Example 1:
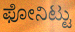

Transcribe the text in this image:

ಫೋನಿಟ್ಟು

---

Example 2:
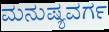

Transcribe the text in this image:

ಮನುಷ್ಯವರ್ಗ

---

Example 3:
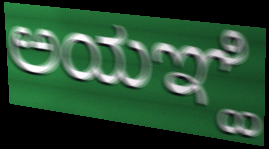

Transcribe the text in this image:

ಅಯಞ್ಹಿ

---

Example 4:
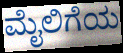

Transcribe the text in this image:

ಮೈಲಿಗೆಯ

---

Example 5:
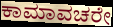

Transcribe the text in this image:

ಕಾಮಾವಚರೇ